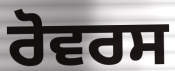
ਰੋਵਰਸ